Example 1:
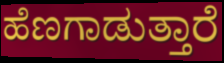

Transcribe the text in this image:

ಹೆಣಗಾಡುತ್ತಾರೆ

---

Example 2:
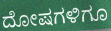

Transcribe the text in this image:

ದೋಷಗಳಿಗೂ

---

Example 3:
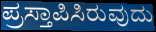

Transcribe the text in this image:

ಪ್ರಸ್ತಾಪಿಸಿರುವುದು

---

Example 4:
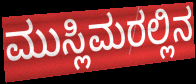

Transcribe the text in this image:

ಮುಸ್ಲಿಮರಲ್ಲಿನ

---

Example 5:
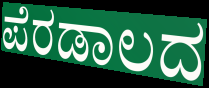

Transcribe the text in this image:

ಪೆರಡಾಲದ